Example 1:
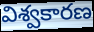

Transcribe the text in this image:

విశ్వకారణ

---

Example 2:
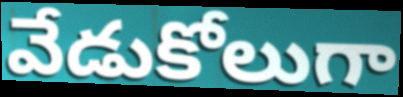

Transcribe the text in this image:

వేడుకోలుగా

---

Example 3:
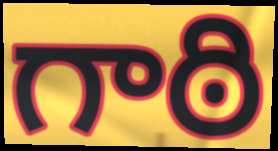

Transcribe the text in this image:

గాఠి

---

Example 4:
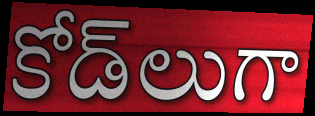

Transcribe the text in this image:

కోడ్‌లుగా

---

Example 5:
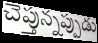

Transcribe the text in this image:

చెప్తున్నప్పుడు